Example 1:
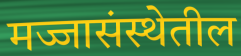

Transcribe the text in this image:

मज्जासंस्थेतील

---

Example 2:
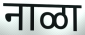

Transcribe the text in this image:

नाळा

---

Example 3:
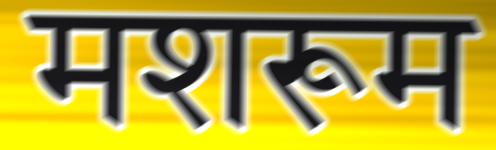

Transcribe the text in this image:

मशरूम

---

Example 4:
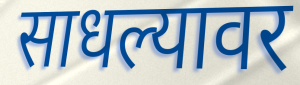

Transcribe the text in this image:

साधल्यावर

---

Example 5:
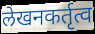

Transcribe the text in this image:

लेखनकर्तृत्व